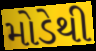
મોડેથી